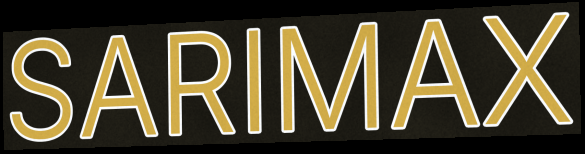
SARIMAX